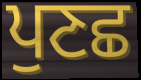
ਪੁਣਛ